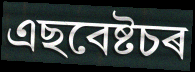
এছবেষ্টচৰ